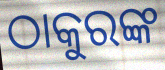
ଠାକୁରଙ୍କ